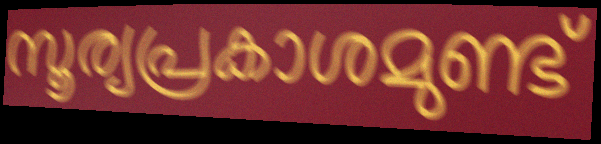
സൂര്യപ്രകാശമുണ്ട്